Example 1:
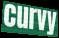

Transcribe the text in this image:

curvy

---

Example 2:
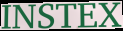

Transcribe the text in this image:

INSTEX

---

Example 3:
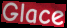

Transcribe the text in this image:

Glace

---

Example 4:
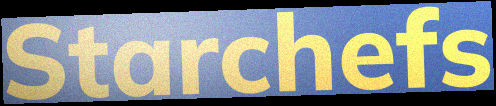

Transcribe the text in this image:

Starchefs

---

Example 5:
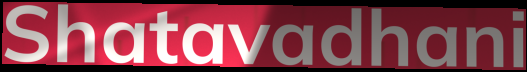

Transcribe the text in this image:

Shatavadhani